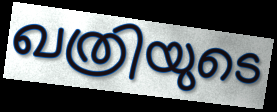
ഖത്രിയുടെ